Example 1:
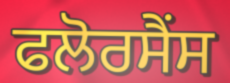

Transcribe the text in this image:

ਫਲੋਰਸੈਂਸ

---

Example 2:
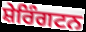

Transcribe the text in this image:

ਸ਼ੇਰਿੰਗਟਨ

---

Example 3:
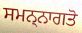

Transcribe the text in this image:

ਸਮਨ੍ਨਾਗਤੋ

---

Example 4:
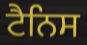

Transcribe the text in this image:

ਟੈਨਿਸ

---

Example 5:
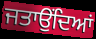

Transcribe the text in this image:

ਜਤਾਉੰਦਿਆਂ